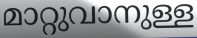
മാറ്റുവാനുള്ള